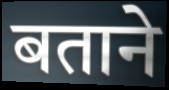
बताने